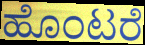
ಹೊಂಟರೆ